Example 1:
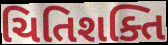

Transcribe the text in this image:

ચિતિશક્તિ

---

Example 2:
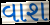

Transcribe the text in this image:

વાશ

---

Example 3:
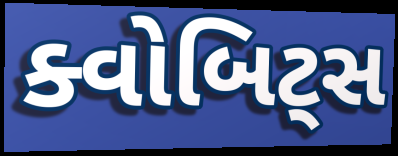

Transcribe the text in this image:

ક્વોબિટ્સ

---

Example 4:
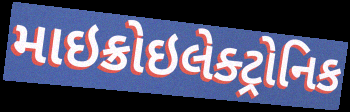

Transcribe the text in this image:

માઇક્રોઇલેક્ટ્રોનિક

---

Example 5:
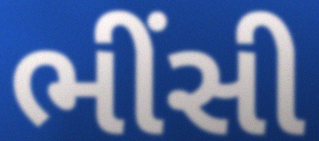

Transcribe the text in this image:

ભીંસી